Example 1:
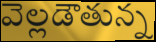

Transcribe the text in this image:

వెల్లడౌతున్న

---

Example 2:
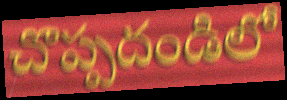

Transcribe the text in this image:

చొప్పదండిలో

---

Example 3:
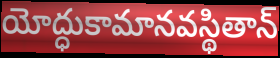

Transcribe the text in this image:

యోద్ధుకామానవస్థితాన్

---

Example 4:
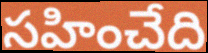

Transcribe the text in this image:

సహించేది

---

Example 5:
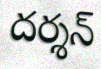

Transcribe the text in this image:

దర్శన్